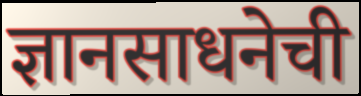
ज्ञानसाधनेची